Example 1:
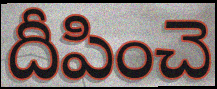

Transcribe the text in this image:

దీపించె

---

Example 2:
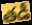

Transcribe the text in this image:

తడీ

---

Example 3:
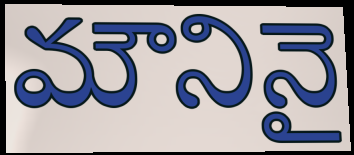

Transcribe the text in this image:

మౌనినై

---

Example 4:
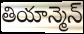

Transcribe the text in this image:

తియాన్మెన్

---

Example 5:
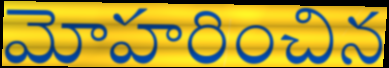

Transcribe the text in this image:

మోహరించిన